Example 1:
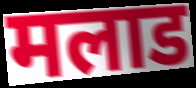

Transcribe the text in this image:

मलाड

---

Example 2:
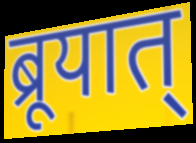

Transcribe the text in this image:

ब्रूयात्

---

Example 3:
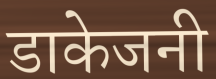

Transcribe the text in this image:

डाकेजनी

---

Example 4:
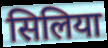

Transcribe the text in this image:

सिलिया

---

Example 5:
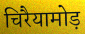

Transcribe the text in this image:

चिरैयामोड़